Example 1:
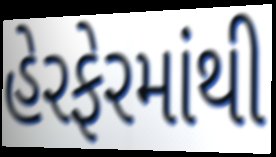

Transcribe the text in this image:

હેરફેરમાંથી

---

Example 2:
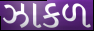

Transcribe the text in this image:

ઝાકળ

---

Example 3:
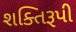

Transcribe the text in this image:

શક્તિરૂપી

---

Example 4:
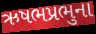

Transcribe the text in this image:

ઋષભપ્રભુના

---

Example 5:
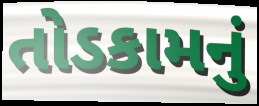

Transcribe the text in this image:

તોડકામનું